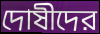
দোষীদের